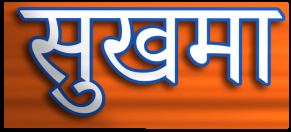
सुखमा